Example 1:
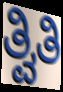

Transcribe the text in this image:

ತ್ವಿತಿ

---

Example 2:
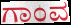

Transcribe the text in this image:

ಗಾಂವ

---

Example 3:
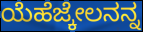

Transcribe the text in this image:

ಯೆಹೆಜ್ಕೇಲನನ್ನ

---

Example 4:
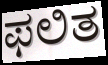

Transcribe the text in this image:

ಫಲಿತ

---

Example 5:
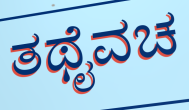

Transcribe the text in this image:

ತಥೈವಚ